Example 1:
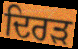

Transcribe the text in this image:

ਦਿਰੜ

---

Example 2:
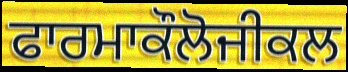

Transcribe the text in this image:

ਫਾਰਮਾਕੌਲੋਜੀਕਲ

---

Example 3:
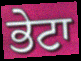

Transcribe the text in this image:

ਭੇਟਾ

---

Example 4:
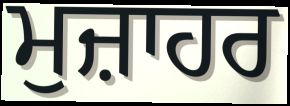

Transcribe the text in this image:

ਮੁਜ਼ਾਹਰ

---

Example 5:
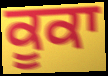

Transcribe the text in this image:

ਕੂਕਾ